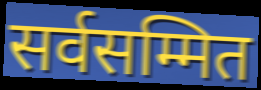
सर्वसम्मित